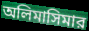
অলিমাসিমার